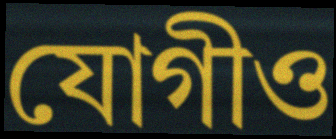
যোগীও